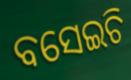
ବସେଇଚି